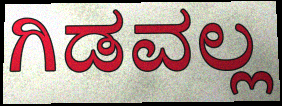
ಗಿಡವಲ್ಲ